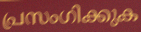
പ്രസംഗിക്കുക